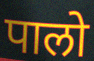
पालो